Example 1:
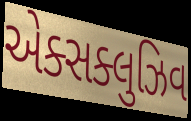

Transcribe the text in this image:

એક્સક્લુઝિવ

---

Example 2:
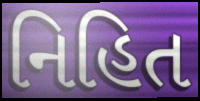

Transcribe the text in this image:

નિહિત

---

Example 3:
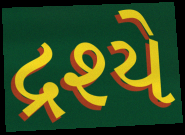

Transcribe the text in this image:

દ્રશ્યે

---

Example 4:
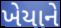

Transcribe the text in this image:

ખેયાને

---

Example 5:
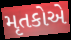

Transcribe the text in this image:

મૃતકોએ